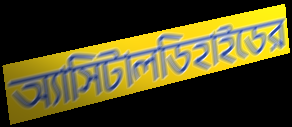
অ্যাসিটালডিহাইডের